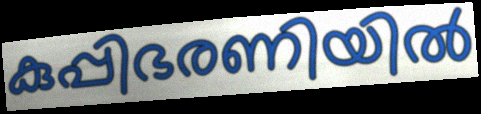
കുപ്പിഭരണിയിൽ